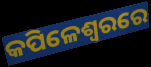
କପିଳେଶ୍ୱରରେ